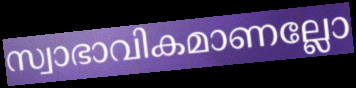
സ്വാഭാവികമാണല്ലോ